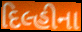
દિલ્હીના